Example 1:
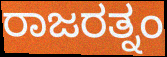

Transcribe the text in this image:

ರಾಜರತ್ನಂ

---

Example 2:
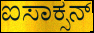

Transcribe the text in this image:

ಐಸಾಕ್ಸನ್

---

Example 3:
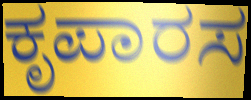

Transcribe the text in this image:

ಕೃಪಾರಸ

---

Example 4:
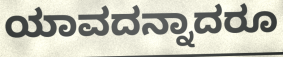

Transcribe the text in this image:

ಯಾವದನ್ನಾದರೂ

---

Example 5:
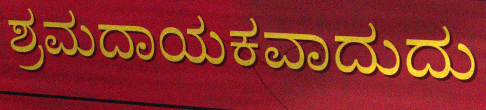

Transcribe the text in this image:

ಶ್ರಮದಾಯಕವಾದುದು